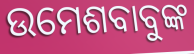
ଉମେଶବାବୁଙ୍କ